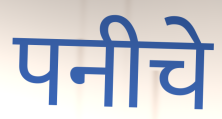
पनीचे